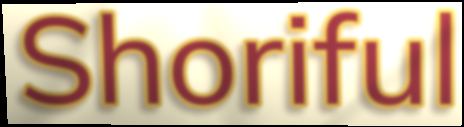
Shoriful